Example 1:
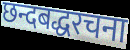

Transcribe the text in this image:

छन्दबद्धरचना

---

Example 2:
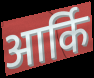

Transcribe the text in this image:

आर्कि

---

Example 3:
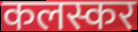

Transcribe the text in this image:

कलस्कर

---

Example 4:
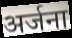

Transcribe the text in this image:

अर्जना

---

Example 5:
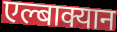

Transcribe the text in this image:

एल्बाक्यान